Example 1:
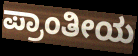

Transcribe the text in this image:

ಪ್ರಾಂತೀಯ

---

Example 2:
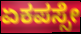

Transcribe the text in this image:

ಏಕಪಸ್ಸೇ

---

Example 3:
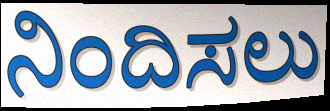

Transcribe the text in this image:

ನಿಂದಿಸಲು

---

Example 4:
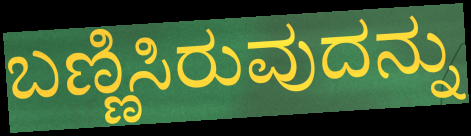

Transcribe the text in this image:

ಬಣ್ಣಿಸಿರುವುದನ್ನು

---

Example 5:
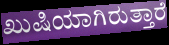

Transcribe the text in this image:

ಖುಷಿಯಾಗಿರುತ್ತಾರೆ